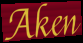
Aken